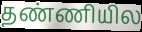
தண்ணியில